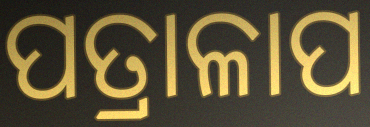
ପତ୍ରାଳାପ